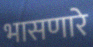
भासणारे